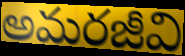
అమరజీవి